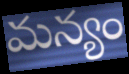
మన్యం